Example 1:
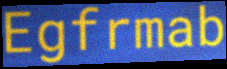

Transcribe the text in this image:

Egfrmab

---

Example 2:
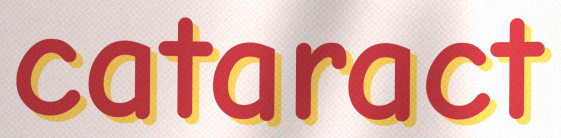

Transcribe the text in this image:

cataract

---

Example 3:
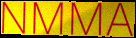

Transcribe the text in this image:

NMMA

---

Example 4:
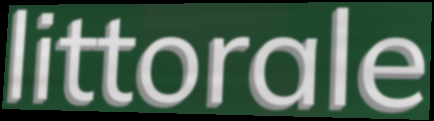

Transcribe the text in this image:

littorale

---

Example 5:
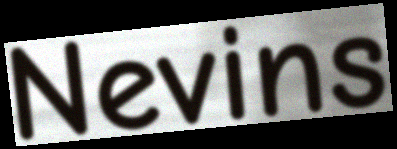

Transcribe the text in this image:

Nevins